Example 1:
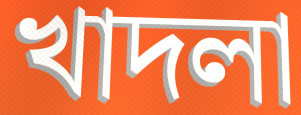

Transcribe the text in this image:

খাদলা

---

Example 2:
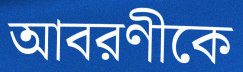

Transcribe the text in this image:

আবরণীকে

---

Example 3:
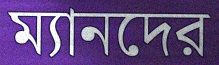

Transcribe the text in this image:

ম্যানদের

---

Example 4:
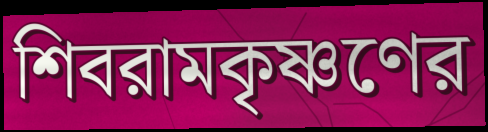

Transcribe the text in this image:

শিবরামকৃষ্ণণের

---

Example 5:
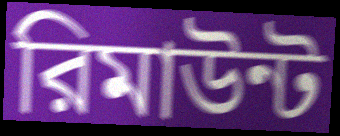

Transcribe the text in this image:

রিমাউন্ট